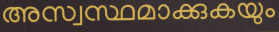
അസ്വസ്ഥമാക്കുകയും